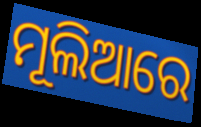
ମୂଲିଆରେ